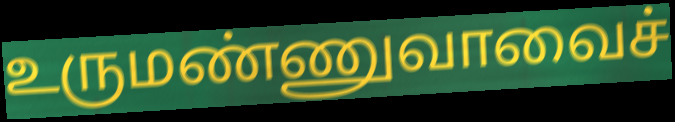
உருமண்ணுவாவைச்